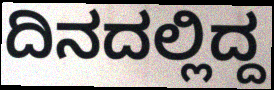
ದಿನದಲ್ಲಿದ್ದ